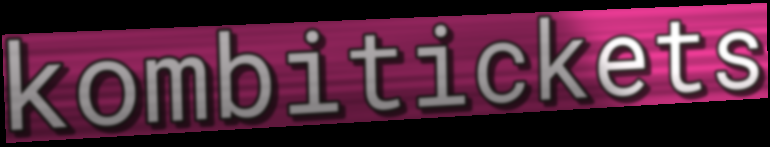
kombitickets